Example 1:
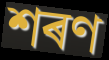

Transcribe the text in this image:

শৰণ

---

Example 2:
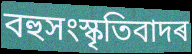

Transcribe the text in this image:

বহুসংস্কৃতিবাদৰ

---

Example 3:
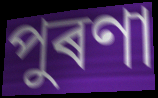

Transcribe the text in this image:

পুৰণা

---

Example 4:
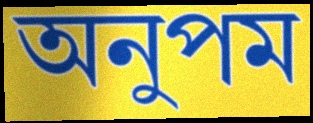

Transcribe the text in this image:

অনুপম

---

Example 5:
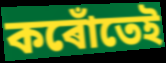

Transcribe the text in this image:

কৰোঁতেই